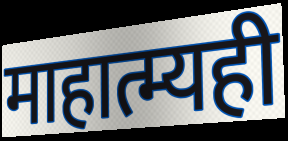
माहात्म्यही